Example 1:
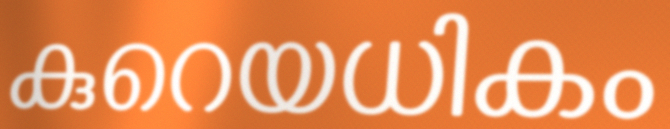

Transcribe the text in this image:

കുറെയധികം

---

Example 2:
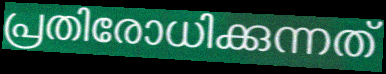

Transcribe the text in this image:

പ്രതിരോധിക്കുന്നത്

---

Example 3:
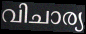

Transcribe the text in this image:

വിചാര്യ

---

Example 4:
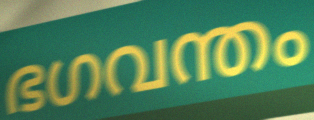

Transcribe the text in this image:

ഭഗവന്തം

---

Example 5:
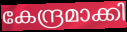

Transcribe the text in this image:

കേന്ദ്രമാക്കി